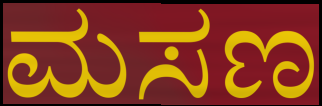
ಮಸಣ